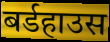
बर्डहाउस